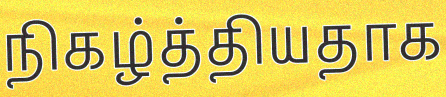
நிகழ்த்தியதாக